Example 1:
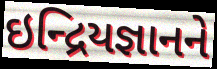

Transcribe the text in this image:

ઇન્દ્રિયજ્ઞાનને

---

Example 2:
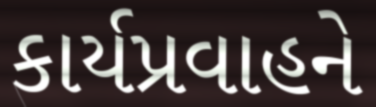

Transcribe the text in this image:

કાર્યપ્રવાહને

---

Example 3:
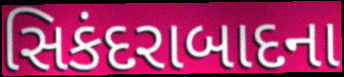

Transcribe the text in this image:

સિકંદરાબાદના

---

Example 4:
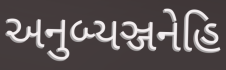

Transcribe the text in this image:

અનુબ્યઞ્જનેહિ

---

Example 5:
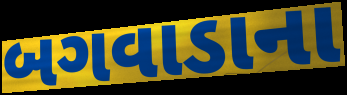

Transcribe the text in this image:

બગવાડાના